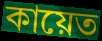
কায়েত